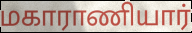
மகாராணியார்